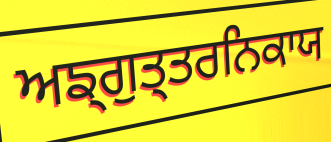
ਅਙ੍ਗੁਤ੍ਤਰਨਿਕਾਯ